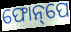
ଫୋନ୍‌ପେ